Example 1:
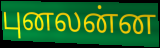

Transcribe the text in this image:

புனலன்ன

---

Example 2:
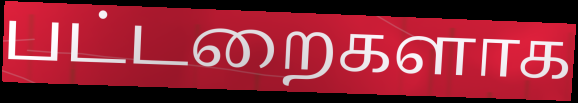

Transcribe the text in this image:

பட்டறைகளாக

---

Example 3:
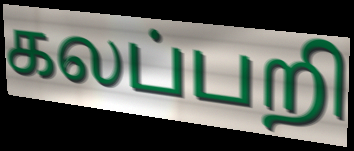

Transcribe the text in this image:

கலப்பறி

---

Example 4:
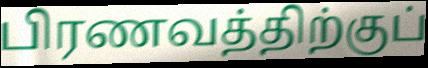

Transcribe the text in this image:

பிரணவத்திற்குப்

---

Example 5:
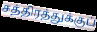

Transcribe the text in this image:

சத்திரத்துக்குப்